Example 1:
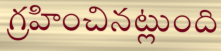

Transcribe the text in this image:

గ్రహించినట్లుంది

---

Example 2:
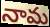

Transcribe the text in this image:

నామ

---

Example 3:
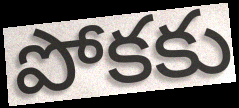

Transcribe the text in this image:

పోకకు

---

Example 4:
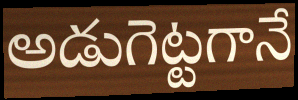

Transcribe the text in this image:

అడుగెట్టగానే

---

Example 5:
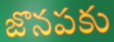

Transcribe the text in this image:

జొనపకు